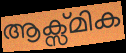
ആക്സ്മിക